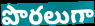
పొరలుగా